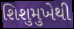
શિશુમુખેથી